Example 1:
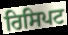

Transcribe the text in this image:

ਰਿਸਿਪਟ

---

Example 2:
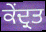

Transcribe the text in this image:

ਕੇਂਦ੍ਰਤ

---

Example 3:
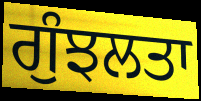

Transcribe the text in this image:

ਗੁੰਝਲਤਾ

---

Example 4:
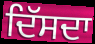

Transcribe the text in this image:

ਦਿੱਸਦਾ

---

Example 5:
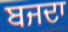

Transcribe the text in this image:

ਬਜਦਾ